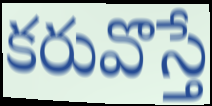
కరువొస్తే